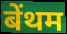
बेंथम